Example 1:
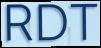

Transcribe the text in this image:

RDT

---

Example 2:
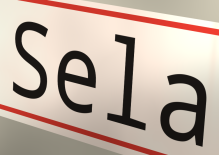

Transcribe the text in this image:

Sela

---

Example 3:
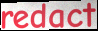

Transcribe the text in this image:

redact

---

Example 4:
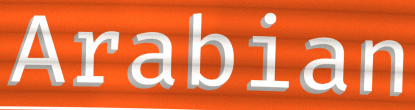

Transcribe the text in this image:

Arabian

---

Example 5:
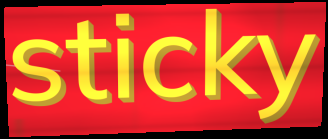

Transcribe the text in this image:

sticky